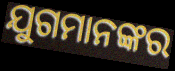
ଯୁଗମାନଙ୍କର